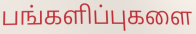
பங்களிப்புகளை